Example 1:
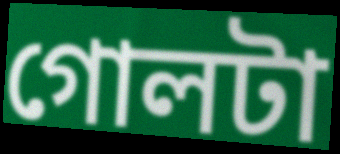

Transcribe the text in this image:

গোলটা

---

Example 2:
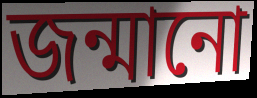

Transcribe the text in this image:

জন্মানো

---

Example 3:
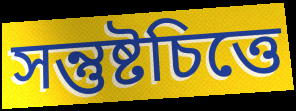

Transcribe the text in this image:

সন্তুষ্টচিত্তে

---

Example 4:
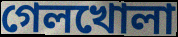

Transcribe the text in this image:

গেলখোলা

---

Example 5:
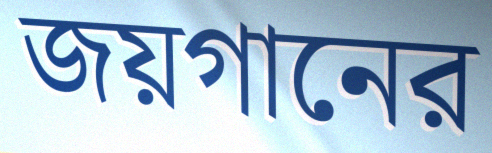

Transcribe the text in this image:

জয়গানের